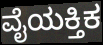
ವೈಯಕ್ತಿಕ